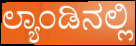
ಲ್ಯಾಂಡಿನಲ್ಲಿ